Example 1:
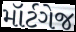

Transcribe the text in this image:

મૉર્ટગેજ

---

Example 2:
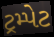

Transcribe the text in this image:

ટ્રમ્પેટ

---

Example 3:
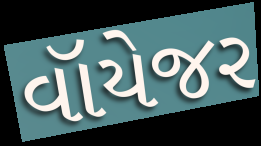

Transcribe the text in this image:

વૉયેજર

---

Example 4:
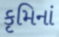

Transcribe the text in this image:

કૃમિનાં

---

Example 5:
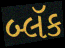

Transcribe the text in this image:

બ્લૅક